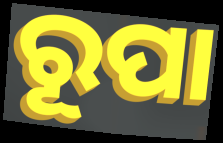
ରୂପା